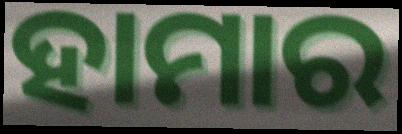
ହାମାର